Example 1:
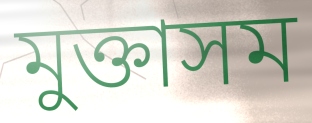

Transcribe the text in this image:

মুক্তাসম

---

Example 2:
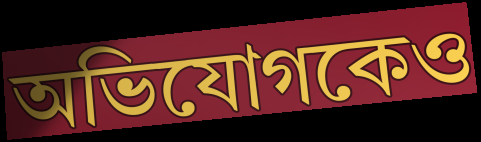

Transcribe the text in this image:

অভিযোগকেও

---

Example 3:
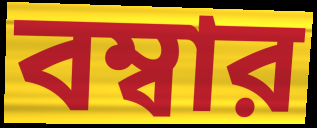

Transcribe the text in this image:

বম্বার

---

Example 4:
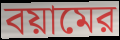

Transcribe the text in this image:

বয়ামের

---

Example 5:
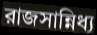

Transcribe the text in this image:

রাজসান্নিধ্য